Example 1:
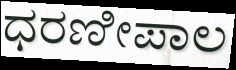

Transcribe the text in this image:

ಧರಣೀಪಾಲ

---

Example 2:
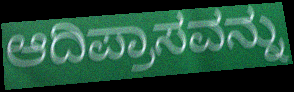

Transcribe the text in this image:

ಆದಿಪ್ರಾಸವನ್ನು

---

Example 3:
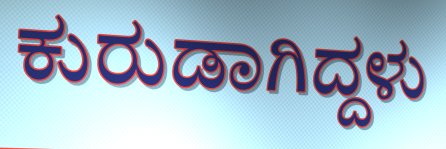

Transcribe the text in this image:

ಕುರುಡಾಗಿದ್ದಳು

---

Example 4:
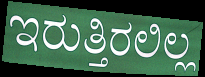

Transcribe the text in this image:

ಇರುತ್ತಿರಲಿಲ್ಲ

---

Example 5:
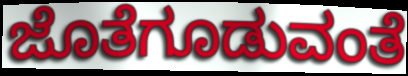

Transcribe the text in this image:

ಜೊತೆಗೂಡುವಂತೆ